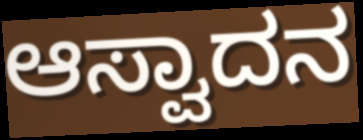
ಆಸ್ವಾದನ